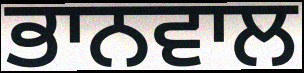
ਭਾਨਵਾਲ